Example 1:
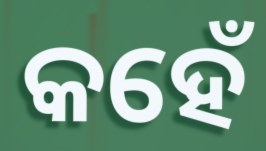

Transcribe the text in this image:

କହେଁ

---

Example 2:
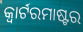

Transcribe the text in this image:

କ୍ୱାର୍ଟରମାଷ୍ଟର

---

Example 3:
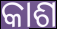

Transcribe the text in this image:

କାଶ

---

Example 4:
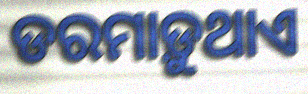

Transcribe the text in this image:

ଡରମାଡ଼ୁଥାଏ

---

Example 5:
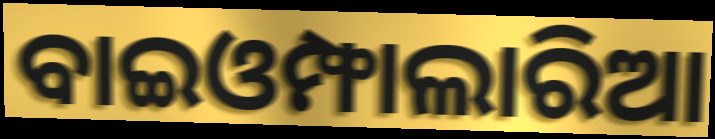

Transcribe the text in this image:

ବାଇଓମ୍ଫାଲାରିଆ